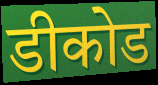
डीकोड